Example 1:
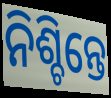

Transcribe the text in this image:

ନିଶ୍ଚିନ୍ତେ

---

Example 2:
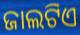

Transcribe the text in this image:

ଜାଲଟିଏ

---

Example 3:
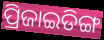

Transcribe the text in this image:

ପ୍ରିଜାଇଡିଙ୍ଗ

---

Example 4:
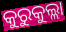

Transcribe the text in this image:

କୁରୁକୁଲ୍ଲା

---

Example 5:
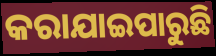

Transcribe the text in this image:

କରାଯାଇପାରୁଛି